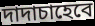
দাদাচাহেবে